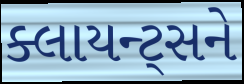
ક્લાયન્ટ્સને